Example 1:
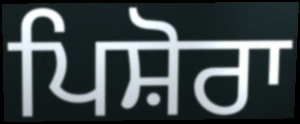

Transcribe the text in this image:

ਪਿਸ਼ੋਰਾ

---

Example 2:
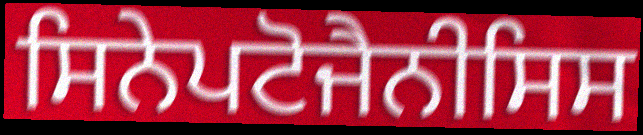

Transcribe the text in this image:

ਸਿਨੇਪਟੋਜੈਨੀਸਿਸ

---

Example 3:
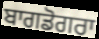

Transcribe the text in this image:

ਬਾਗਡੋਗਰਾ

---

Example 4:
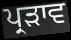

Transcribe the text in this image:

ਪ੍ਰੜਾਵ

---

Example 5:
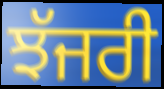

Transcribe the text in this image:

ਝੱਜਰੀ